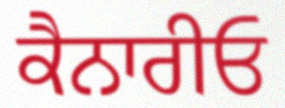
ਕੈਨਾਰੀਓ